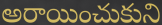
అరాయించుకుని